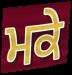
ਮਕੇ